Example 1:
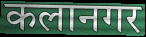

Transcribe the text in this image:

कलानगर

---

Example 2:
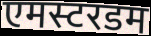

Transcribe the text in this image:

एमस्टरडम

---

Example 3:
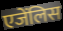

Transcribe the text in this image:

एजेंलिस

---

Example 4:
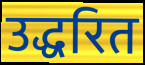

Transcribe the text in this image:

उद्धरित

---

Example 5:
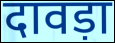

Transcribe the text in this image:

दावड़ा